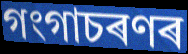
গংগাচৰণৰ